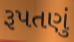
રૂપતણું